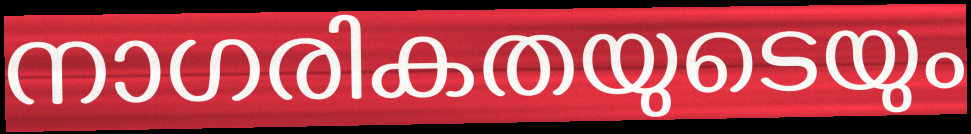
നാഗരികതയുടെയും